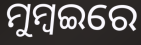
ମୁମ୍ବଇରେ